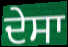
ਦੇਸਾ